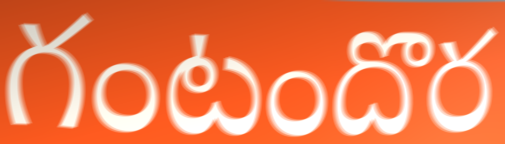
గంటందొర